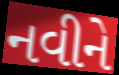
નવીને